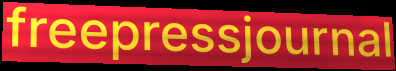
freepressjournal